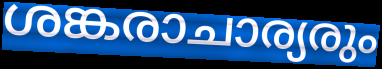
ശങ്കരാചാര്യരും